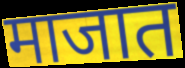
माजात